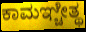
ಕಾಮಞ್ಚೇತ್ಥ